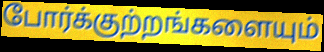
போர்க்குற்றங்களையும்